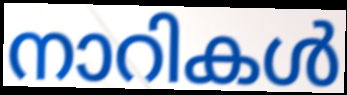
നാറികൾ